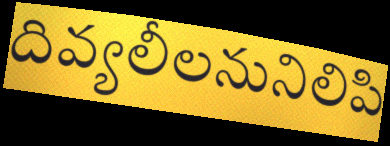
దివ్యలీలనునిలిపి